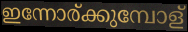
ഇന്നോര്ക്കുമ്പോള്